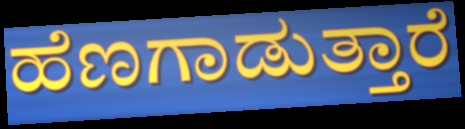
ಹೆಣಗಾಡುತ್ತಾರೆ